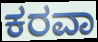
ಕರವಾ